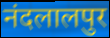
नंदलालपुर